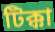
টিক্কা